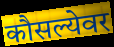
कौसल्येवर